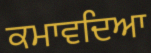
ਕਮਾਵਦਿਆ